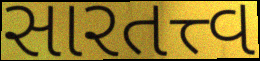
સારતત્ત્વ